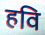
हवि